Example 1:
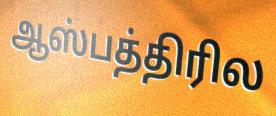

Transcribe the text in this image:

ஆஸ்பத்திரில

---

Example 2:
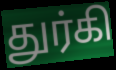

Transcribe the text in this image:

துர்கி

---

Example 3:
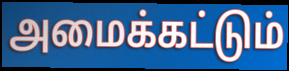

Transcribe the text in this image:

அமைக்கட்டும்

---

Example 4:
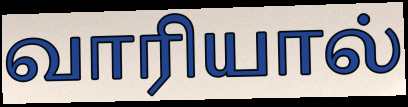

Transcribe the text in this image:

வாரியால்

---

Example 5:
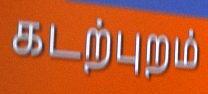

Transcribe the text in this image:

கடற்புறம்